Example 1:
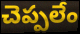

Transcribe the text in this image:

చెప్పలేం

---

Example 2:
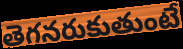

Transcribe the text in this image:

తెగనరుకుతుంటే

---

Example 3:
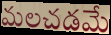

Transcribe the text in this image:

మలచడమే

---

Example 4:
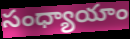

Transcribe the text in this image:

సంధ్యాయాం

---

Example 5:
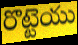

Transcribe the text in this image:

రొట్టెయు